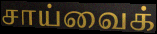
சாய்வைக்